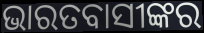
ଭାରତବାସୀଙ୍କର